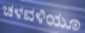
ಚಳವಳಿಯೂ